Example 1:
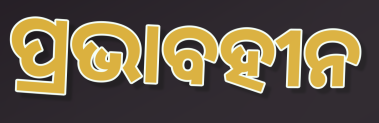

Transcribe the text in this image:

ପ୍ରଭାବହୀନ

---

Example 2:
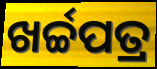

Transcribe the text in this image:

ଖର୍ଚ୍ଚପତ୍ର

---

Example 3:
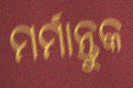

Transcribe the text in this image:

ମର୍ମାନ୍ତୁକ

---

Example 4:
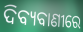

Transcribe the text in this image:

ଦିବ୍ୟବାଣୀରେ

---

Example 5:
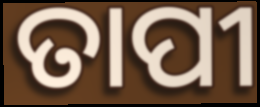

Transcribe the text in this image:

ତାପୀ